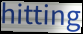
hitting